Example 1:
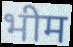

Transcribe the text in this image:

भीम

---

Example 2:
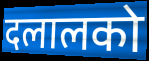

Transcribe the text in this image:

दलालको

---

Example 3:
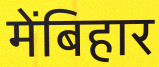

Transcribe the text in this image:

मेंबिहार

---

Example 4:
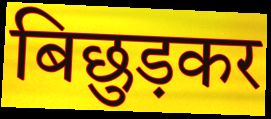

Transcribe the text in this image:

बिछुड़कर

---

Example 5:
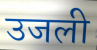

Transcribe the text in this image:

उजली